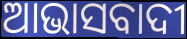
ଆଭାସବାଦୀ